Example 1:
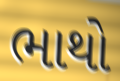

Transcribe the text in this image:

ભાથો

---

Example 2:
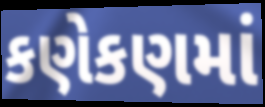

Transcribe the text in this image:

કણેકણમાં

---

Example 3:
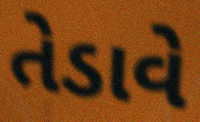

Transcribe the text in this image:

તેડાવે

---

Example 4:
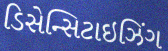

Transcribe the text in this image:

ડિસેન્સિટાઇઝિંગ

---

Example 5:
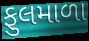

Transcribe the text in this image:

ફુલમાળા